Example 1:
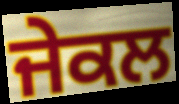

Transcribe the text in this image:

ਜੇਕਲ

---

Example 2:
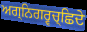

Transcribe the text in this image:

ਅਗ੍ਨਿਗਰ੍ਵਚ੍ਛਿਦੇ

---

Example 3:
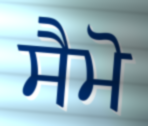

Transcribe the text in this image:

ਸੈਮੋ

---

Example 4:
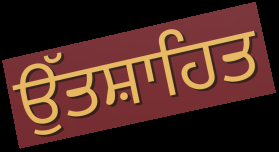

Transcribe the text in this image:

ਉੱਤਸ਼ਾਹਿਤ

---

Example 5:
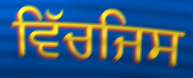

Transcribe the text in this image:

ਵਿੱਚਜਿਸ